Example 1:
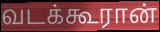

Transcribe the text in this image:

வடக்கூரான்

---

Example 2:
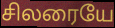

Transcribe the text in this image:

சிலரையே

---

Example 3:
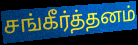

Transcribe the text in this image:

சங்கீர்த்தனம்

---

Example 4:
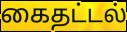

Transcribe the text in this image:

கைதட்டல்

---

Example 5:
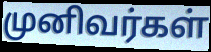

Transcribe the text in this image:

முனிவர்கள்